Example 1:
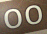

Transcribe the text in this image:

oo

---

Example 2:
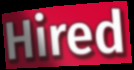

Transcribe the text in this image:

Hired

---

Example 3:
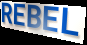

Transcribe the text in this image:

REBEL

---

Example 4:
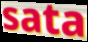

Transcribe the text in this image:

sata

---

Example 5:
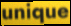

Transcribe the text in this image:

unique